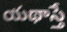
యథాస్తే